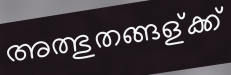
അത്ഭുതങ്ങള്ക്ക്